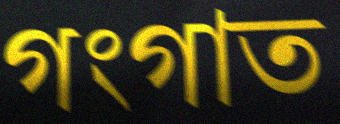
গংগাত